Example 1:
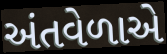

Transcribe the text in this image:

અંતવેળાએ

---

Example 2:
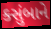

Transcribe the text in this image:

કસુંબાને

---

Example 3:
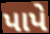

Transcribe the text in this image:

પાપે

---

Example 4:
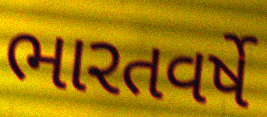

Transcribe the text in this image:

ભારતવર્ષે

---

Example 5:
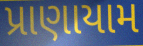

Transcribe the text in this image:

પ્રાણાયામ